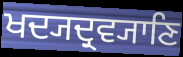
ਖਦ੍ਯਦ੍ਰਵ੍ਯਾਣਿ